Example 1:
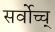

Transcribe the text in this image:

सर्वोच्च्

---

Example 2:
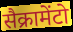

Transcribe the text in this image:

सैक्रामेंटो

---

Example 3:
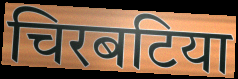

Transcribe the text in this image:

चिरबटिया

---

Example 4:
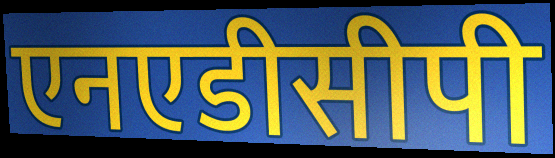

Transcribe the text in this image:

एनएडीसीपी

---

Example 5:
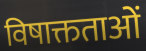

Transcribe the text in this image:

विषाक्तताओं